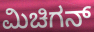
ಮಿಚಿಗನ್